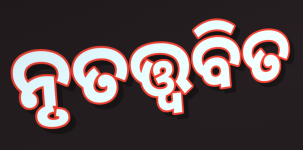
ନୃତତ୍ତ୍ୱବିତ